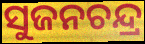
ସୁଜନଚନ୍ଦ୍ର